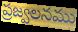
ప్రజ్వలనము